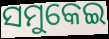
ସମୁକେଇ